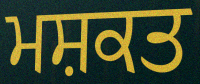
ਮਸ਼ਕਤ